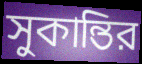
সুকান্তির